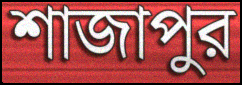
শাজাপুর